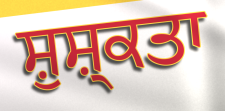
ਸ਼ੁਸ਼੍ਕਤਾ